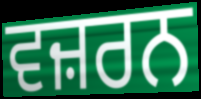
ਵਜ਼ਰਨ